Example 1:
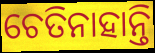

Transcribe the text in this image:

ଚେତିନାହାନ୍ତି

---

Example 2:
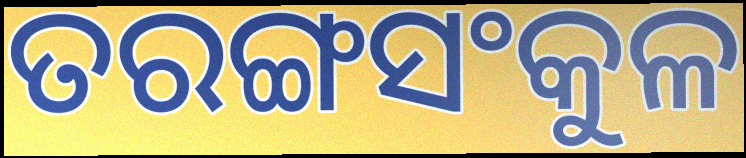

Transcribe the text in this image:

ତରଙ୍ଗସଂକୁଳ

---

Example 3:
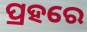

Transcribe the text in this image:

ପ୍ରହରେ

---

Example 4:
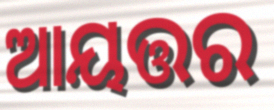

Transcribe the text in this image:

ଆୟତ୍ତର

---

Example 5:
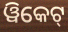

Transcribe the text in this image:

ୱିକେଟ୍